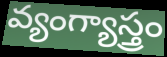
వ్యంగ్యాస్త్రం